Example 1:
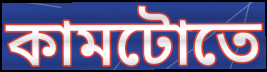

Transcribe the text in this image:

কামটোতে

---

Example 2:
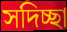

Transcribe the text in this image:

সদিচ্ছা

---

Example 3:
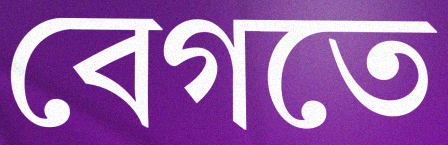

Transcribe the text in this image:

বেগতে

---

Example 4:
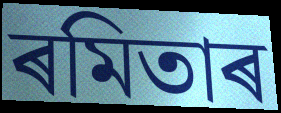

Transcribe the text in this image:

ৰমিতাৰ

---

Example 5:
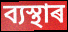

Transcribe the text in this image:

ব্যস্থাৰ